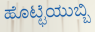
ಹೊಟ್ಟೆಯುಬ್ಬಿ